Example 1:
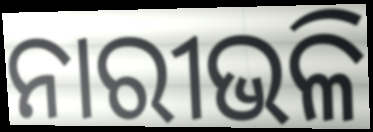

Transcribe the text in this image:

ନାରୀଭଳି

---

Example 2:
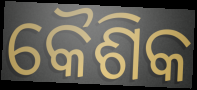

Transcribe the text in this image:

କୈଶିକ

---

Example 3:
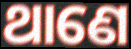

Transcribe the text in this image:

ଥାଣେ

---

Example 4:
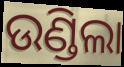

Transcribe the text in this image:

ଉଣ୍ଡିଲା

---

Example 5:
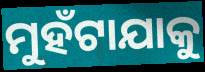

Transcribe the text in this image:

ମୁହଁଟାଯାକୁ